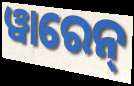
ୱାରେନ୍